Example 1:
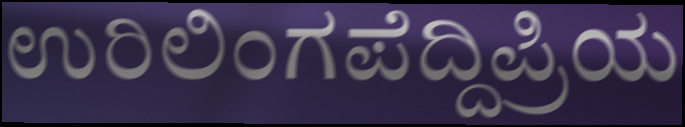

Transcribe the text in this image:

ಉರಿಲಿಂಗಪೆದ್ದಿಪ್ರಿಯ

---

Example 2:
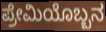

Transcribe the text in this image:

ಪ್ರೇಮಿಯೊಬ್ಬನ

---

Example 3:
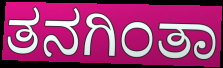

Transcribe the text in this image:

ತನಗಿಂತಾ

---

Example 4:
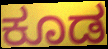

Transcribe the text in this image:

ಕೂಡ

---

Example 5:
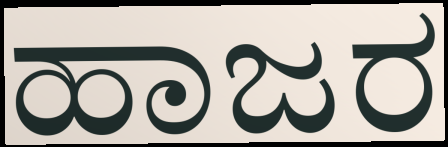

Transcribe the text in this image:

ಹಾಜರ